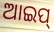
ଆଇପ୍